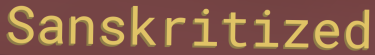
Sanskritized